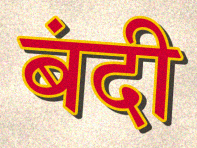
बंदी